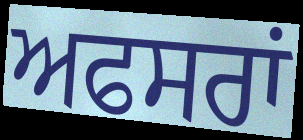
ਅਫਸਰਾਂ